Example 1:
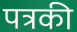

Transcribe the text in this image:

पत्रकी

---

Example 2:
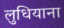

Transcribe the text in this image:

लुधियाना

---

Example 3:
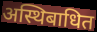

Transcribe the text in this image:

अस्थिबाधित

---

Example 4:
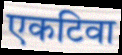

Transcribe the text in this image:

एकटिवा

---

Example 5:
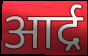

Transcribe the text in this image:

आर्द्र